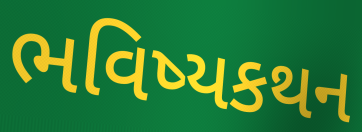
ભવિષ્યકથન